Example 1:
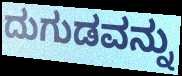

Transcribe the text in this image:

ದುಗುಡವನ್ನು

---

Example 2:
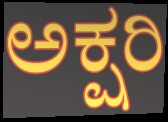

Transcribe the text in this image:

ಅಕ್ಷರಿ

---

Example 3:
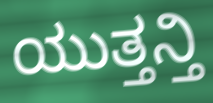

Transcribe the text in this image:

ಯುತ್ತನ್ತಿ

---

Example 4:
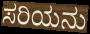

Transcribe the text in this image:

ಸರಿಯನು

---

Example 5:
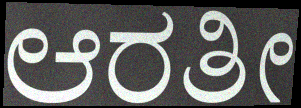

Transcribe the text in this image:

ಆರತೀ